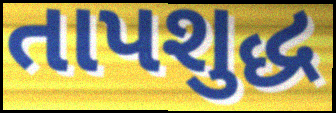
તાપશુદ્ધ